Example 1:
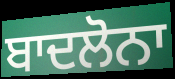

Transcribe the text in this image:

ਬਾਦਲੋਨਾ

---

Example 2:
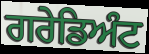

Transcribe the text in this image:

ਗਰੇਡਿਅੰਟ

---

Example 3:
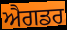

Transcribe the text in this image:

ਐਗਡਰ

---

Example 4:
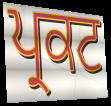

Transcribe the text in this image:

ਪ੍ਰਕਟ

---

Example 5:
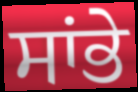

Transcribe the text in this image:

ਸਾਂਭੇ